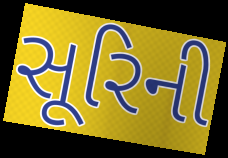
સૂરિની